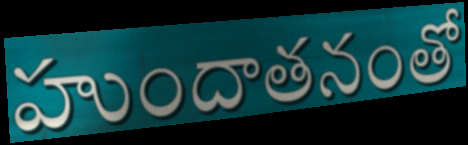
హుందాతనంతో